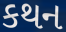
કથન